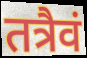
तत्रैवं